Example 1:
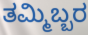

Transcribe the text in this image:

ತಮ್ಮಿಬ್ಬರ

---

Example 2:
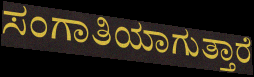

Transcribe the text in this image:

ಸಂಗಾತಿಯಾಗುತ್ತಾರೆ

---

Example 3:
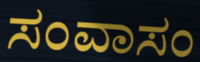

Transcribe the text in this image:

ಸಂವಾಸಂ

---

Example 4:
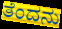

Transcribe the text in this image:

ತೆಂದನು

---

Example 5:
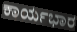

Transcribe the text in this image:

ಕಾರ್ಯಭಾರ